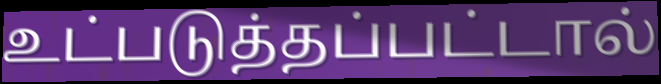
உட்படுத்தப்பட்டால்